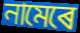
নামেৰে